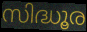
സിദ്ധൂര